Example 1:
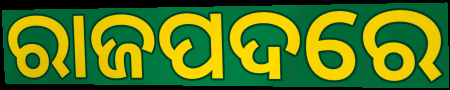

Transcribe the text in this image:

ରାଜପଦରେ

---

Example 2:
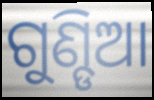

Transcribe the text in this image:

ଗୁଣ୍ଡିଆ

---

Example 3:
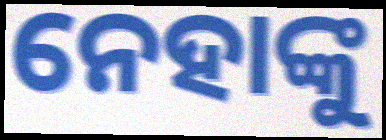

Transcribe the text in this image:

ନେହାଙ୍କୁ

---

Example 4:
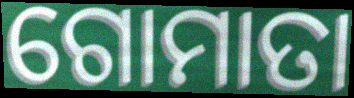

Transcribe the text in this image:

ଗୋମାତା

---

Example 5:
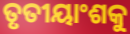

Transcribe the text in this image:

ତୃତୀୟାଂଶକୁ